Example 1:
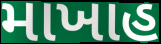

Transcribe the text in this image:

માખાહ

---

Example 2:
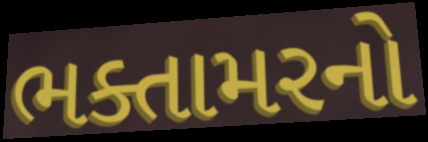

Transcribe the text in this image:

ભક્તામરનો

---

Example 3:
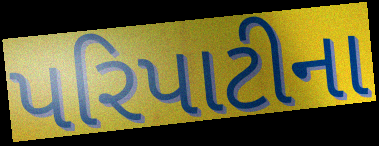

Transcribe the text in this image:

પરિપાટીના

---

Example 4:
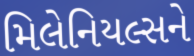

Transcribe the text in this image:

મિલેનિયલ્સને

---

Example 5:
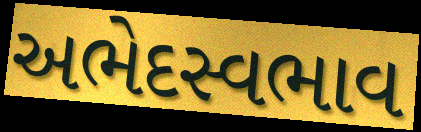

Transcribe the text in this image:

અભેદસ્વભાવ